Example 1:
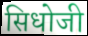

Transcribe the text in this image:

सिधोजी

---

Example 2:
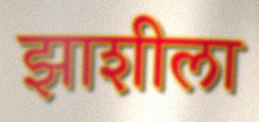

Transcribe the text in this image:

झाशीला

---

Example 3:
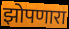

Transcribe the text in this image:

झोपणारा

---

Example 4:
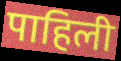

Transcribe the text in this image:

पाहिली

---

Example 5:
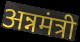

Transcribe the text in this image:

अन्नमंत्री